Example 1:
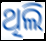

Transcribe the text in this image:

ଥିଲି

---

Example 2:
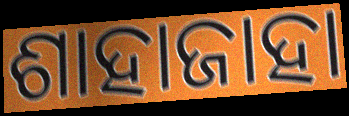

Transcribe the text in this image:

ଶାହାଜାହା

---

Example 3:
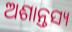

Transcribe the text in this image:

ଅଶାନ୍ତସ୍ୟ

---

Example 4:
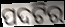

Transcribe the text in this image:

ପଦଟିର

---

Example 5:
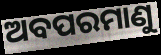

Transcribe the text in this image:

ଅବପରମାଣୁ